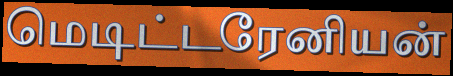
மெடிட்டரேனியன்